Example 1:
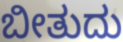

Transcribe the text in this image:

ಬೀತುದು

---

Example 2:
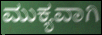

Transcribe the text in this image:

ಮುಕ್ಯವಾಗಿ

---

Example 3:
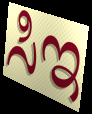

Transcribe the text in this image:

ಸಿಇ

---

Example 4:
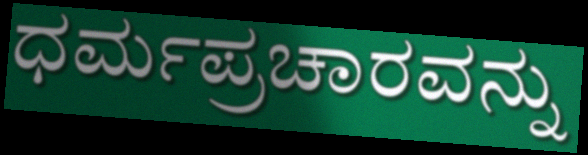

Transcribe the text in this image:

ಧರ್ಮಪ್ರಚಾರವನ್ನು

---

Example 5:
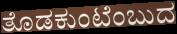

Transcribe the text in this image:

ತೊಡಕುಂಟೆಂಬುದ